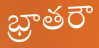
భ్రాతరౌ